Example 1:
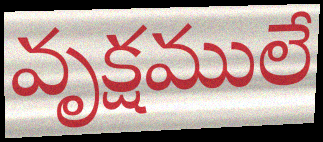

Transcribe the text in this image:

వృక్షములే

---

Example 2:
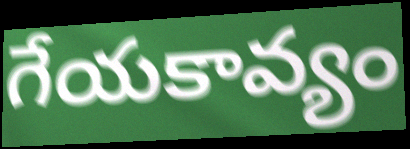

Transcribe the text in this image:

గేయకావ్యం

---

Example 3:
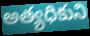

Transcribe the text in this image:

అత్యధికుని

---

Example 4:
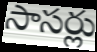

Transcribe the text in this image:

సాసర్లు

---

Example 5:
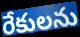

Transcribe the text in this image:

రేకులను